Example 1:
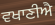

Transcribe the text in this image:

ਵਖਾਣੀਐ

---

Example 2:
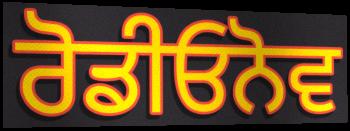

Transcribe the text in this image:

ਰੋਡੀਓਨੋਵ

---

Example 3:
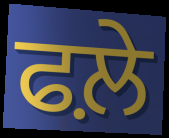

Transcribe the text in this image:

ਫਲ਼ੇ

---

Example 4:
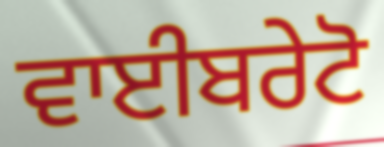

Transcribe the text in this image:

ਵਾਈਬਰੇਟੋ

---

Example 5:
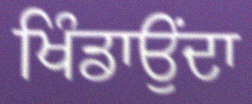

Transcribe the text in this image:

ਖਿੰਡਾਉਂਦਾ